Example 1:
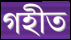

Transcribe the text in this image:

গহীত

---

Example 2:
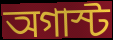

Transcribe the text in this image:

অগাস্ট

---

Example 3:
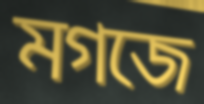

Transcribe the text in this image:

মগজে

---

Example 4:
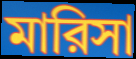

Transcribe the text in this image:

মারিসা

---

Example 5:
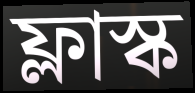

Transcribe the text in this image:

ফ্লাস্ক